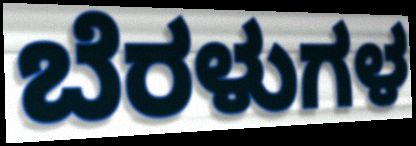
ಬೆರಳುಗಳ